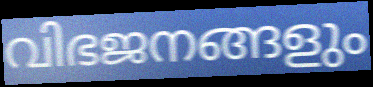
വിഭജനങ്ങളും